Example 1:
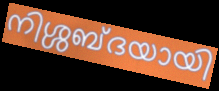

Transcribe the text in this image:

നിശ്ശബ്ദയായി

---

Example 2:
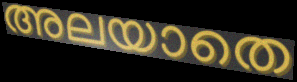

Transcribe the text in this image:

അലയാതെ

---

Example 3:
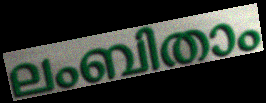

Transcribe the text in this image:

ലംബിതാം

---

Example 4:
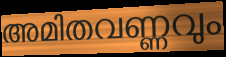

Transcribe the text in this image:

അമിതവണ്ണവും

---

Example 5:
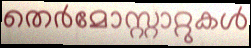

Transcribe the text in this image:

തെർമോസ്റ്റാറ്റുകൾ